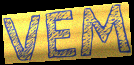
VEM